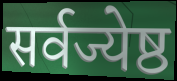
सर्वज्येष्ठ